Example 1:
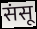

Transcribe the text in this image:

संसू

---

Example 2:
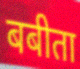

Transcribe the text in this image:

बबीता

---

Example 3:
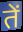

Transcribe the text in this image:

तें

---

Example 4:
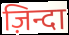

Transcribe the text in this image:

ज़िन्दा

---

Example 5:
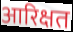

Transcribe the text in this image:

आरिक्षत